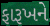
ફારૂખને